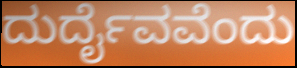
ದುರ್ದೈವವೆಂದು